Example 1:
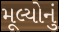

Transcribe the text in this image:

મૂલ્યોનું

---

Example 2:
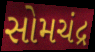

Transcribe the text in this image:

સોમચંદ્ર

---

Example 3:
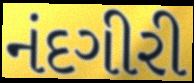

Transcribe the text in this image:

નંદગીરી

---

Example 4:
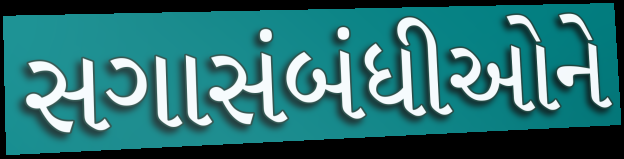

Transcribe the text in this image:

સગાસંબંધીઓને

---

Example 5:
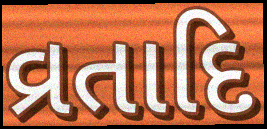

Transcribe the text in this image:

વ્રતાદિ